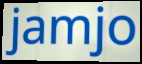
jamjo